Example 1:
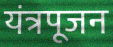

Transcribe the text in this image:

यंत्रपूजन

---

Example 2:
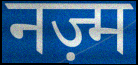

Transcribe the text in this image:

नज़्म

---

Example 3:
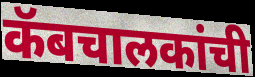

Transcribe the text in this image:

कॅबचालकांची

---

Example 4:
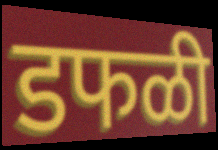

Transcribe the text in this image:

डफळी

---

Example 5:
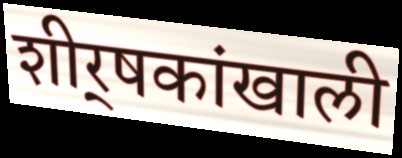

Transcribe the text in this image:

शीर्षकांखाली